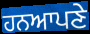
ਹਨਆਪਣੇ